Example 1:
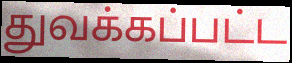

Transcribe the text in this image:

துவக்கப்பட்ட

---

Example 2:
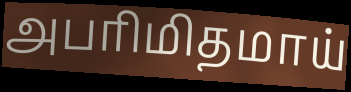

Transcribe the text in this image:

அபரிமிதமாய்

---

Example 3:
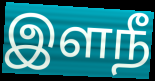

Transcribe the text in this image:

இளநீ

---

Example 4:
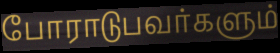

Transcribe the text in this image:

போராடுபவர்களும்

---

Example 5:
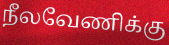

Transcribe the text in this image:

நீலவேணிக்கு